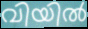
വിയിൽ